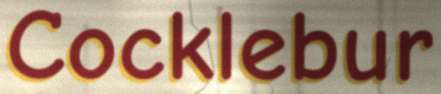
Cocklebur